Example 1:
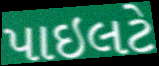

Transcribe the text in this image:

પાઇલટે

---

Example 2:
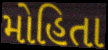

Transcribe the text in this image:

મોહિતા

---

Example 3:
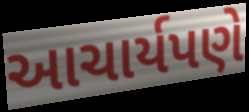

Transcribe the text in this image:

આચાર્યપણે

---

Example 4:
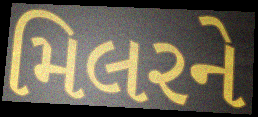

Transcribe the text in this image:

મિલરને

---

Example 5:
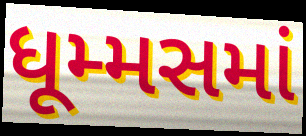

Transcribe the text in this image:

ધૂમ્મસમાં